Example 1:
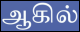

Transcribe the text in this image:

ஆகில்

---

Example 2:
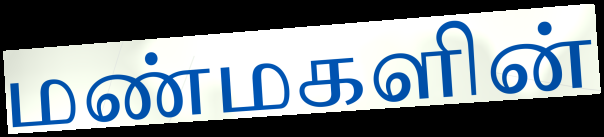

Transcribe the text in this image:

மண்மகளின்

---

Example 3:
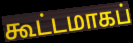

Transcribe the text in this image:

கூட்டமாகப்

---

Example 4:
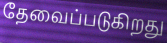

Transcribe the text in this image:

தேவைப்படுகிறது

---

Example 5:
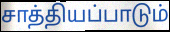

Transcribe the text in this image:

சாத்தியப்பாடும்